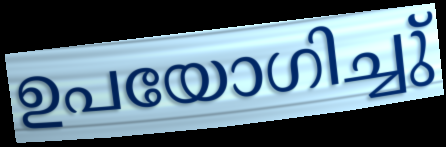
ഉപയോഗിച്ചു്